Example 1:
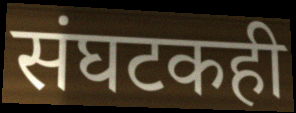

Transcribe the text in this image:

संघटकही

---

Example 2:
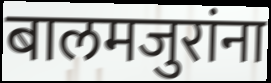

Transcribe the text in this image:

बालमजुरांना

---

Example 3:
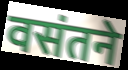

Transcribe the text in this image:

वसंतने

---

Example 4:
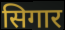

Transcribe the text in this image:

सिगार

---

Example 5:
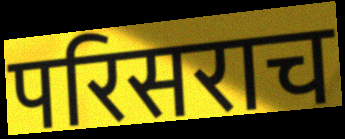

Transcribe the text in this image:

परिसराच